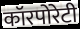
कॉरपोरेटी